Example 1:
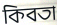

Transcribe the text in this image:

কিবতা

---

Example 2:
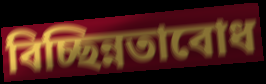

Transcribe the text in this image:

বিচ্ছিন্নতাবোধ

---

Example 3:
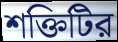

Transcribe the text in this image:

শক্তিটির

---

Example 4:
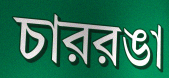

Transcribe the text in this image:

চাররঙা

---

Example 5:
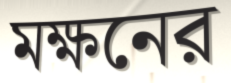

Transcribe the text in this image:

মক্ষনের